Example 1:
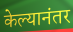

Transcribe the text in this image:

केल्यानंतर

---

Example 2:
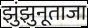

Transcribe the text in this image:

झुंझुनूताजा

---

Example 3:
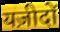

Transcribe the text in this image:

यज़ीदों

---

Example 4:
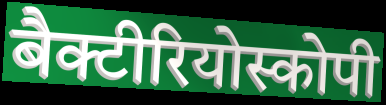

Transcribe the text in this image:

बैक्टीरियोस्कोपी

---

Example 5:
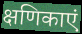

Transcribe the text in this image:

क्षणिकाएं